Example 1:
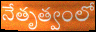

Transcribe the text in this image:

నేతృత్వంలో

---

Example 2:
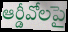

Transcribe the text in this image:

ఆర్డీవోలపై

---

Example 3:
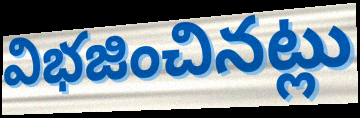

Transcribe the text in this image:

విభజించినట్లు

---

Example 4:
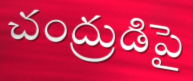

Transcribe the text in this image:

చంద్రుడిపై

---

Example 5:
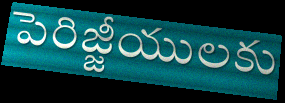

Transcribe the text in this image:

పెరిజ్జీయులకు